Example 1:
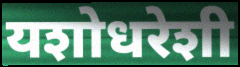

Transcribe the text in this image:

यशोधरेशी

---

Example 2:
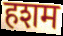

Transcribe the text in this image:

हशम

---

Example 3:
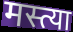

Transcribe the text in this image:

मस्त्या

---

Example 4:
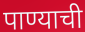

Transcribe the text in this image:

पाण्याची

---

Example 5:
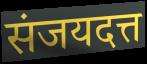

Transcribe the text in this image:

संजयदत्त